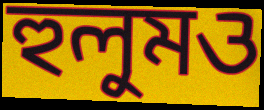
হুলুমও